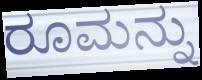
ರೂಮನ್ನು